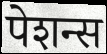
पेशन्स